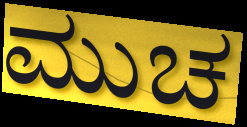
ಮುಚ